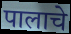
पालाचे